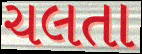
ચલતા